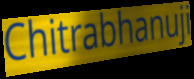
Chitrabhanuji